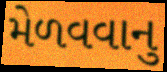
મેળવવાનુ